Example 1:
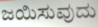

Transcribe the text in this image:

ಜಯಿಸುವುದು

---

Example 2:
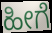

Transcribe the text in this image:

ಹೀಗೆ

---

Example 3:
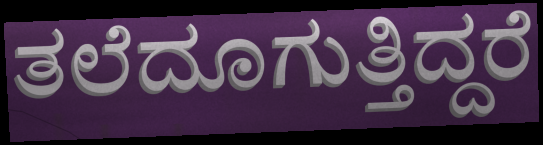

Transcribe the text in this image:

ತಲೆದೂಗುತ್ತಿದ್ದರೆ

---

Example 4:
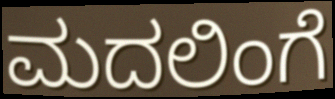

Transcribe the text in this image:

ಮದಲಿಂಗೆ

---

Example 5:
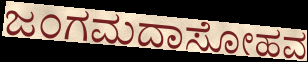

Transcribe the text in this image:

ಜಂಗಮದಾಸೋಹವ